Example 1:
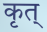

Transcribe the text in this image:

कृत्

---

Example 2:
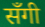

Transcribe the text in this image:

सँगी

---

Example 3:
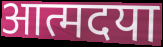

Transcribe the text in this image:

आत्मदया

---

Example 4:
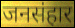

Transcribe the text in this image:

जनसंहार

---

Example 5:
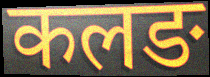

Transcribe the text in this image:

कलङ